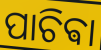
ପାଚିଵା